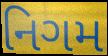
નિગમ